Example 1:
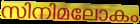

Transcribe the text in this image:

സിനിമലോകം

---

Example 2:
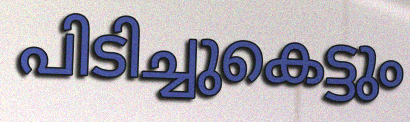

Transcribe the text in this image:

പിടിച്ചുകെട്ടും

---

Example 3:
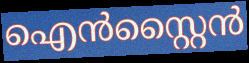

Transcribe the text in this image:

ഐൻസ്റ്റൈൻ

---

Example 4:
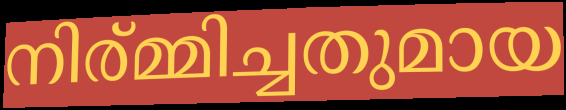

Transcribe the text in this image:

നിര്മ്മിച്ചതുമായ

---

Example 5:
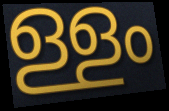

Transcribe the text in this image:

ള്ളം